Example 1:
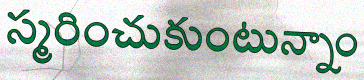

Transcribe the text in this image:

స్మరించుకుంటున్నాం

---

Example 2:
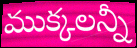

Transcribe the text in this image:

ముక్కలన్నీ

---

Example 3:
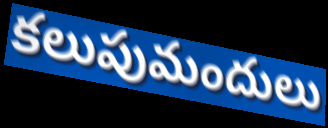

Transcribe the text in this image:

కలుపుమందులు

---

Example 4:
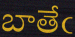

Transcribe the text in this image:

బాతేఁ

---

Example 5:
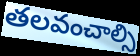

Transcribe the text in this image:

తలవంచాల్సి